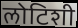
लोटिशी